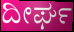
ದೀರ್ಘ